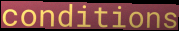
conditions